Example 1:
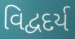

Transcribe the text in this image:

વિદ્વદર્ય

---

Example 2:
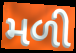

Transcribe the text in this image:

મળી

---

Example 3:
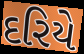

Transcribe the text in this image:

દરિયે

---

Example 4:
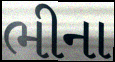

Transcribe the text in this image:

ભીના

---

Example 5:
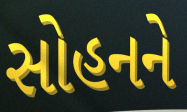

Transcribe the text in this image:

સોહનને